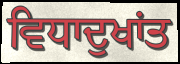
ਵਿਧਾਦੁਖਾਂਤ